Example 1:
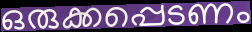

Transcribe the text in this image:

ഒരുക്കപ്പെടണം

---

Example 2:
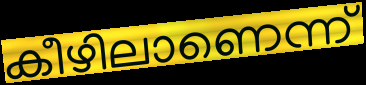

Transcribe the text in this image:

കീഴിലാണെന്ന്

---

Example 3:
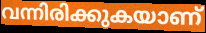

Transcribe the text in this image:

വന്നിരിക്കുകയാണ്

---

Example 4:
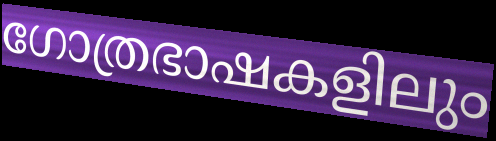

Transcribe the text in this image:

ഗോത്രഭാഷകളിലും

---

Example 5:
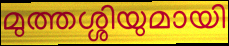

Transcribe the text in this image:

മുത്തശ്ശിയുമായി